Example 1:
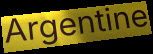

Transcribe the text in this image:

Argentine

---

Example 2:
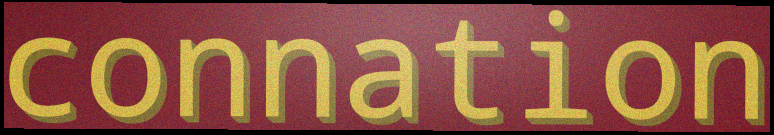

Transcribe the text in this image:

connation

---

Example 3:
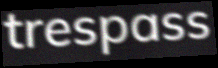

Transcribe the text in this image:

trespass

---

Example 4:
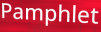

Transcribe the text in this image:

Pamphlet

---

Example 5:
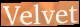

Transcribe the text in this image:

Velvet